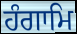
ਹੰਗਾਮਿ